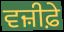
ਵਜ਼ੀਫ਼ੇ